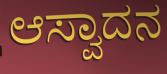
ಆಸ್ವಾದನ